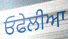
ਓਫੇਲੀਆ